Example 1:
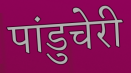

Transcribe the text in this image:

पांडुचेरी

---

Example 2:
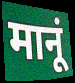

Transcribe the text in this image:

मानूं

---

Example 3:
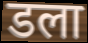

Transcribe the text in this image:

डला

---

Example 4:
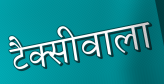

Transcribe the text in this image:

टैक्सीवाला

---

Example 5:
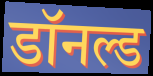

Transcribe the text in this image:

डॉनल्ड